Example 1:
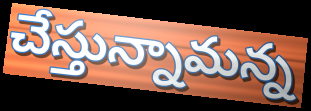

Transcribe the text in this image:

చేస్తున్నామన్న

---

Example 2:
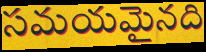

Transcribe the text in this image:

సమయమైనది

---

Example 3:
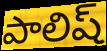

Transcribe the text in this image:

పాలిష్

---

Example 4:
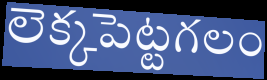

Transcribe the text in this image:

లెక్కపెట్టగలం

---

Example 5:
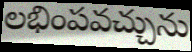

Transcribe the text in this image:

లభింపవచ్చును